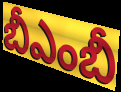
బీఎంబీ